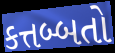
કત્તબ્બતો